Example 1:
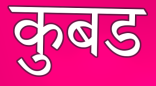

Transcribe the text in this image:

कुबड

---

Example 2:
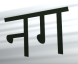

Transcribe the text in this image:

नग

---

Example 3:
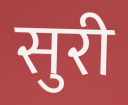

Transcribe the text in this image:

सुरी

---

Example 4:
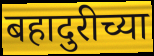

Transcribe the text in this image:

बहादुरीच्या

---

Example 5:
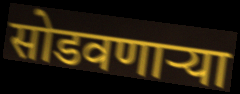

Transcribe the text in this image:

सोडवणाऱ्या